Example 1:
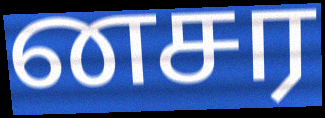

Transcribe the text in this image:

னசர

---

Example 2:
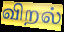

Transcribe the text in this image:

விறல்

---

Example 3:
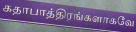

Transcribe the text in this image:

கதாபாத்திரங்களாகவே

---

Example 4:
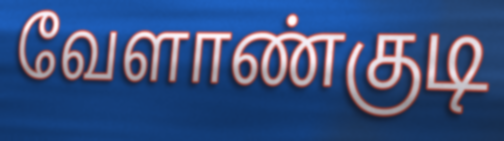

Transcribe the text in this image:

வேளாண்குடி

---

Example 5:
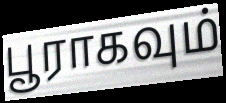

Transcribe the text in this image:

பூராகவும்